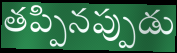
తప్పినప్పుడు